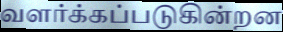
வளர்க்கப்படுகின்றன